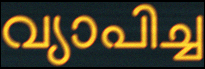
വ്യാപിച്ച